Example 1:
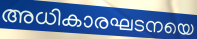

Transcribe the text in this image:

അധികാരഘടനയെ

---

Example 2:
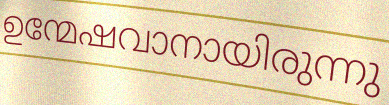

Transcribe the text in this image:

ഉന്മേഷവാനായിരുന്നു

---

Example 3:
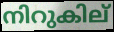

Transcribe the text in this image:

നിറുകില്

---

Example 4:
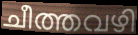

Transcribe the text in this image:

ചീത്തവഴി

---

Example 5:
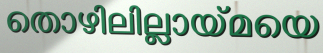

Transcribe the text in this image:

തൊഴിലില്ലായ്മയെ